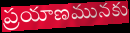
ప్రయాణమునకు